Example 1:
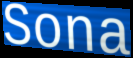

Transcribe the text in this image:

Sona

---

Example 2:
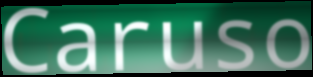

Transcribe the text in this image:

Caruso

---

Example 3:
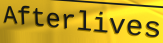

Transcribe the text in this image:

Afterlives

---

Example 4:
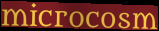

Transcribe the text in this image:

microcosm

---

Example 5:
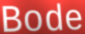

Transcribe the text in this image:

Bode